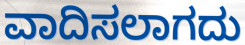
ವಾದಿಸಲಾಗದು